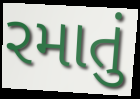
રમાતું